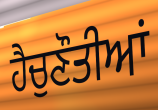
ਹੈਚੁਣੌਤੀਆਂ